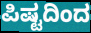
ಪಿಷ್ಟದಿಂದ